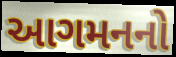
આગમનનો